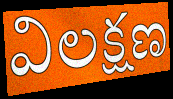
విలక్షణ